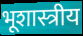
भूशास्त्रीय